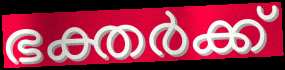
ഭക്തർക്ക്